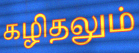
கழிதலும்